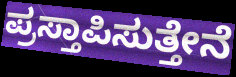
ಪ್ರಸ್ತಾಪಿಸುತ್ತೇನೆ